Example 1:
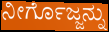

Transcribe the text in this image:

ನೀರ್ಗೊಜ್ಜನ್ನು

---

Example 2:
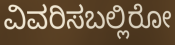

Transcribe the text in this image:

ವಿವರಿಸಬಲ್ಲಿರೋ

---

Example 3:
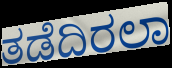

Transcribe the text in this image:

ತಡೆದಿರಲಾ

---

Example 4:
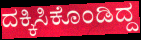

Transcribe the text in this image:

ದಕ್ಕಿಸಿಕೊಂಡಿದ್ದ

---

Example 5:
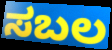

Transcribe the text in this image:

ಸಬಲ